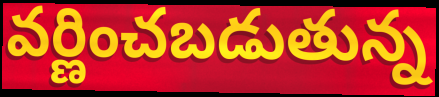
వర్ణించబడుతున్న